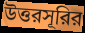
উত্তরসূরির